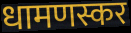
धामणस्कर